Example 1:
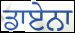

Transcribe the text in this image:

ਡਾਏਨਾ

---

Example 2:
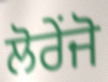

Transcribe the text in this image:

ਲੋਰੇਂਜੋ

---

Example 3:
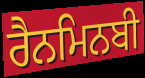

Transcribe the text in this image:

ਰੈਨਮਿਨਬੀ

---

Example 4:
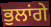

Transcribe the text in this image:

ਭੁਲਾਂਗੇ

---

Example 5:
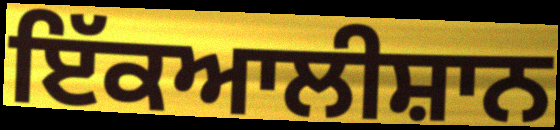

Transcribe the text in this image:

ਇੱਕਆਲੀਸ਼ਾਨ